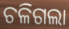
ଚଳିଗଲା